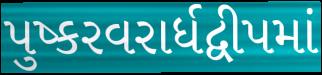
પુષ્કરવરાર્ધદ્વીપમાં